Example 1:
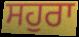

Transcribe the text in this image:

ਸਹੁਰਾ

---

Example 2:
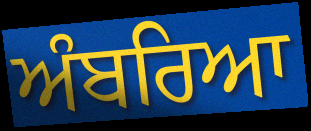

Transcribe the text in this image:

ਅੰਬਰਿਆ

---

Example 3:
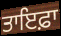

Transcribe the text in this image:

ਤਾਇਫ਼ਾ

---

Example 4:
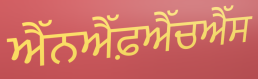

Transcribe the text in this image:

ਐੱਨਐੱਫ਼ਐੱਚਐੱਸ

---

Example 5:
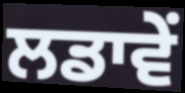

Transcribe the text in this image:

ਲਡਾਵੇਂ